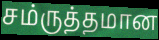
சம்ருத்தமான